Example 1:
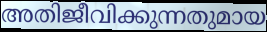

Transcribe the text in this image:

അതിജീവിക്കുന്നതുമായ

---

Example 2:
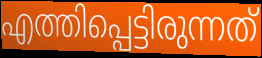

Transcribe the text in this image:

എത്തിപ്പെട്ടിരുന്നത്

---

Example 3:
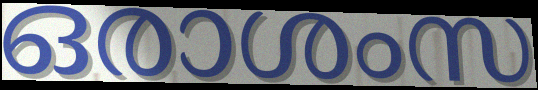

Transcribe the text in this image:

ഒരാശംസ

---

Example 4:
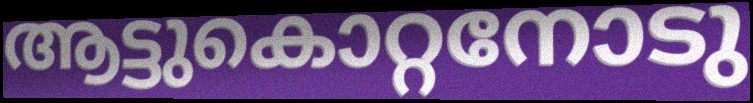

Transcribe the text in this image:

ആട്ടുകൊറ്റനോടു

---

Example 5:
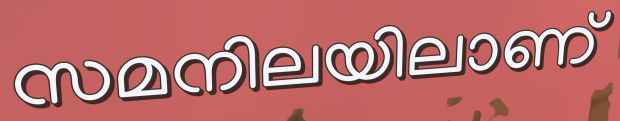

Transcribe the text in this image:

സമനിലയിലാണ്